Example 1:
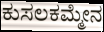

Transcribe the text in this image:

ಕುಸಲಕಮ್ಮೇನ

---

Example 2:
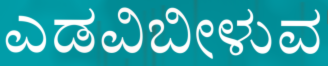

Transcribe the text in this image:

ಎಡವಿಬೀಳುವ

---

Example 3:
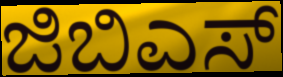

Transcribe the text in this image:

ಜಿಬಿಎಸ್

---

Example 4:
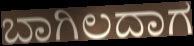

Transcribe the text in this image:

ಬಾಗಿಲದಾಗ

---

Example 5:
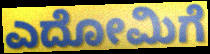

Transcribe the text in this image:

ಎದೋಮಿಗೆ